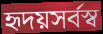
হৃদয়সর্বস্ব